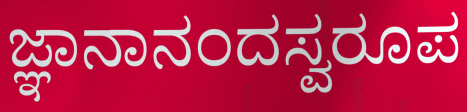
ಜ್ಞಾನಾನಂದಸ್ವರೂಪ